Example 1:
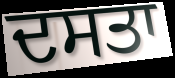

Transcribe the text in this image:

ਦਸਤਾ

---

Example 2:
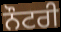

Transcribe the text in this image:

ਨੌਟਰੀ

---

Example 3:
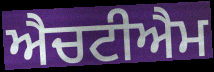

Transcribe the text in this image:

ਐਚਟੀਐਮ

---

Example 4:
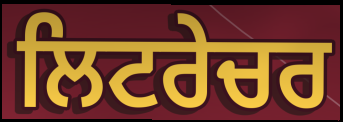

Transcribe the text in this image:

ਲਿਟਰੇਚਰ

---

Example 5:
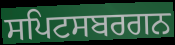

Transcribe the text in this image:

ਸਪਿਟਸਬਰਗਨ